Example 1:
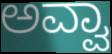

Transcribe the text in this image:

ಅವ್ವಾ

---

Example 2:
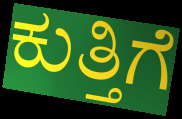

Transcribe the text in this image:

ಕುತ್ತಿಗೆ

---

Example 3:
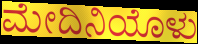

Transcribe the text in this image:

ಮೇದಿನಿಯೊಳು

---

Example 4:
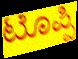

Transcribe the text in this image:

ಟೊಪ್ಪಿ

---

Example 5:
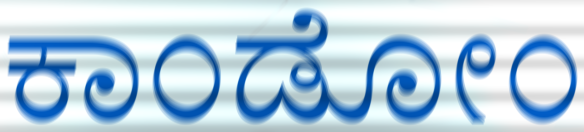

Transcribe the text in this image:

ಕಾಂಡೋಂ